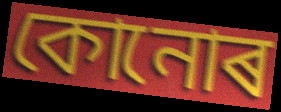
কোনোৰ